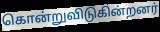
கொன்றுவிடுகின்றனர்